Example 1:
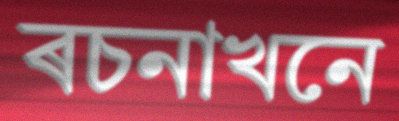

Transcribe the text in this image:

ৰচনাখনে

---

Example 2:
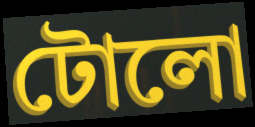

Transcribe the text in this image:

টোলো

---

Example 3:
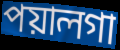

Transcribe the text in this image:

পয়ালগা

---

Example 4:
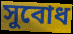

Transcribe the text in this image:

সুবোধ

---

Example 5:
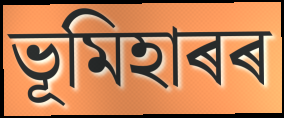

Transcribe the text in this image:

ভূমিহাৰৰ